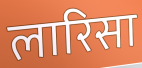
लारिसा